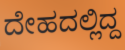
ದೇಹದಲ್ಲಿದ್ದ